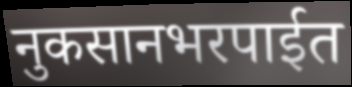
नुकसानभरपाईत